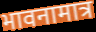
भावनामात्र